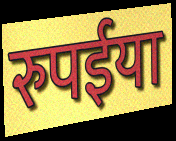
रुपईया